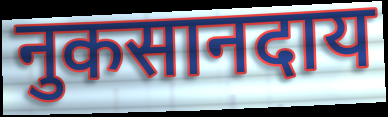
नुकसानदाय